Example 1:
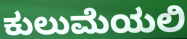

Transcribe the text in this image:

ಕುಲುಮೆಯಲಿ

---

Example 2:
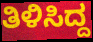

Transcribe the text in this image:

ತಿಳಿಸಿದ್ದ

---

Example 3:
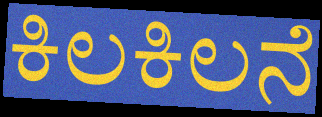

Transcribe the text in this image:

ಕಿಲಕಿಲನೆ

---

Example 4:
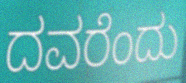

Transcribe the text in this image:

ದವರೆಂದು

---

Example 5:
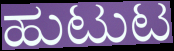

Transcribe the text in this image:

ಹುಟುಟ